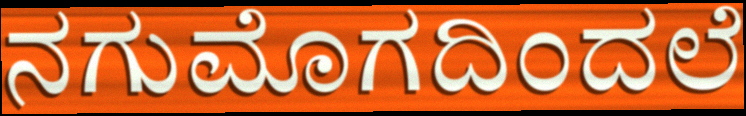
ನಗುಮೊಗದಿಂದಲೆ